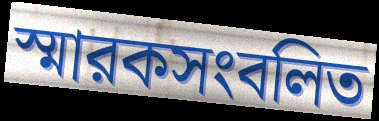
স্মারকসংবলিত